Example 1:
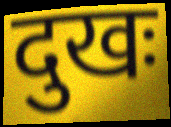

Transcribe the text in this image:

दुखः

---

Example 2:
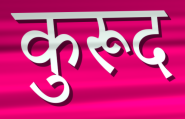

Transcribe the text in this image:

कुरूद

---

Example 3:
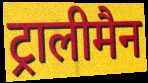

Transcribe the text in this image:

ट्रालीमैन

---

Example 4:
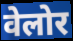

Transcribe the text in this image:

वेलोर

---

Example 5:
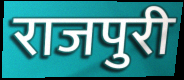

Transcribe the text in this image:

राजपुरी